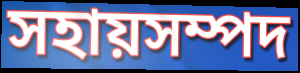
সহায়সম্পদ